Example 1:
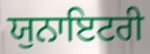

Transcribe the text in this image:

ਯੁਨਾਇਟਰੀ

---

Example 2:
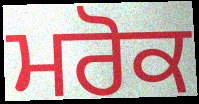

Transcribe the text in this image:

ਮਰੋਕ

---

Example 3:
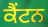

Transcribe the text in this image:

ਕੈਂਟਨ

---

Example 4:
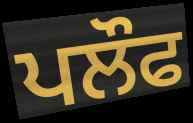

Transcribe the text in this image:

ਪਲੌਫ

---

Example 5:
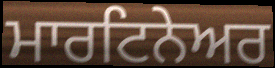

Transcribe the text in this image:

ਮਾਰਟਿਨੇਅਰ